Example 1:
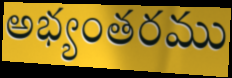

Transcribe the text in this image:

అభ్యంతరము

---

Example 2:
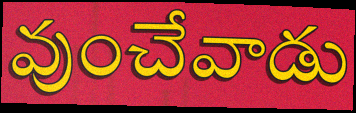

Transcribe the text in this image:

వుంచేవాడు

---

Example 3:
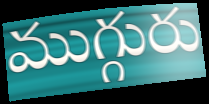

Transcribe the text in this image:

ముగ్గురు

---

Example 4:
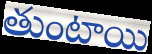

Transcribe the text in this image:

తుంటాయి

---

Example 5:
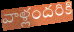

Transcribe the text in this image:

వాళ్లందరికి